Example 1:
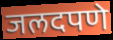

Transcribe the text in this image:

जलदपणे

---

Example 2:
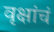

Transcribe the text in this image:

वृक्षांचं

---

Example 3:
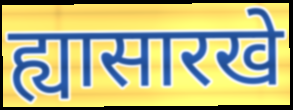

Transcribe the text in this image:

ह्यासारखे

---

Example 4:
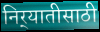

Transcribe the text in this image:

निर्यातीसाठी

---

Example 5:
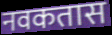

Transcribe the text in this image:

नवकतास